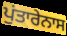
ਪੁਂਤਾਰੇਨਾਸ